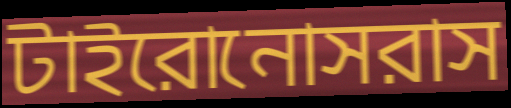
টাইরোনোসরাস